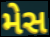
મેસ